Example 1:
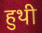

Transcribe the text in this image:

हुथी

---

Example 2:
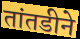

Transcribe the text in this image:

तांतडीने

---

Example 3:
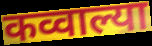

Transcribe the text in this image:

कव्वाल्या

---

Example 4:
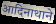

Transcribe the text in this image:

आदिनाथाने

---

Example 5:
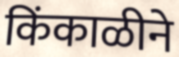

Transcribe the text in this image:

किंकाळीने